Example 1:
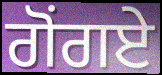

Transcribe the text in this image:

ਗੋਂਗਏ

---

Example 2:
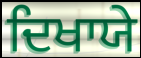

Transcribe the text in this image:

ਦਿਖਾਯੇ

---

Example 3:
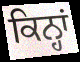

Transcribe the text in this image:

ਕਿਨ੍ਹਾਂ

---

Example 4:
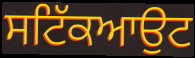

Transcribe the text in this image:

ਸਟਿੱਕਆਉਟ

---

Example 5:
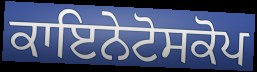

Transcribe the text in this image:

ਕਾਇਨੇਟੋਸਕੋਪ